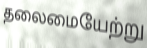
தலைமையேற்று